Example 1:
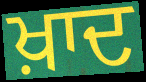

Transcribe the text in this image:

ਖ਼ਾਦ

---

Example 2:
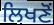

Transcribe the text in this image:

ਲਿਖਣੋਂ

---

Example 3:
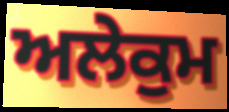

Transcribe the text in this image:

ਅਲੇਕੁਮ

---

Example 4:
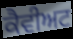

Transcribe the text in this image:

ਕੈਵੀਅਟ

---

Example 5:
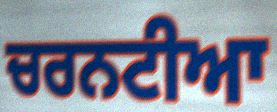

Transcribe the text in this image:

ਚਰਨਟੀਆ